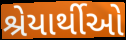
શ્રેયાર્થીઓ